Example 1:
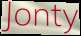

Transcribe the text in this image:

Jonty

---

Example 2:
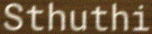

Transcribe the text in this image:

Sthuthi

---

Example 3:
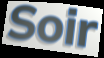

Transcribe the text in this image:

Soir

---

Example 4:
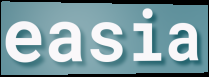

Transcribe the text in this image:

easia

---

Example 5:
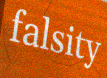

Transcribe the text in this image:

falsity